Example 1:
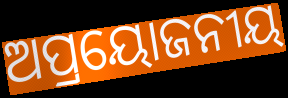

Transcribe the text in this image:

ଅପ୍ରୟୋଜନୀୟ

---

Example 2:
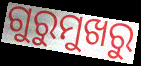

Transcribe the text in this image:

ଗୁରୁମୁଖରୁ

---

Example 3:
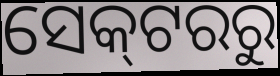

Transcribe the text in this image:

ସେକ୍‌ଟରରୁ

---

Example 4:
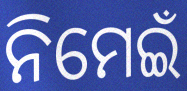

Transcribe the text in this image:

ନିମେଇଁ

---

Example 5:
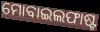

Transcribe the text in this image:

ମୋବାଇଲଫାଷ୍ଟ